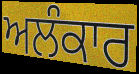
ਅਲੰਕਾਰ